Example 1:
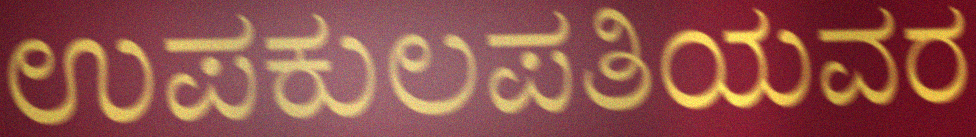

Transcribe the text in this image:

ಉಪಕುಲಪತಿಯವರ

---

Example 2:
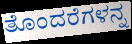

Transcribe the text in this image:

ತೊಂದರೆಗಳನ್ನ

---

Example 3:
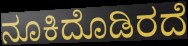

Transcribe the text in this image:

ನೂಕಿದೊಡಿರದೆ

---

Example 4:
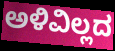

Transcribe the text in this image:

ಅಳಿವಿಲ್ಲದ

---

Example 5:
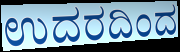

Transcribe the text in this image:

ಉದರದಿಂದ